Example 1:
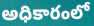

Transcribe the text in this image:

అధికారంలో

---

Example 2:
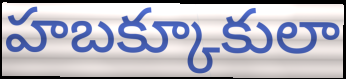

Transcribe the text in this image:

హబక్కూకులా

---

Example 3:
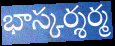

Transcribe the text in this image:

భాస్కర్శర్మ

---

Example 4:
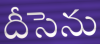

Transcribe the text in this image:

దీసెను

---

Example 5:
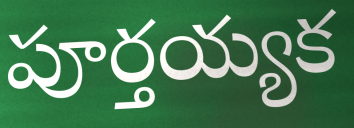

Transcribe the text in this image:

పూర్తయ్యక